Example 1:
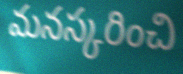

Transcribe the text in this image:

మనస్కరించి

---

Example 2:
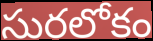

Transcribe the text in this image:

సురలోకం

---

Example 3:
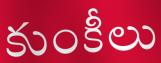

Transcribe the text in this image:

కుంకీలు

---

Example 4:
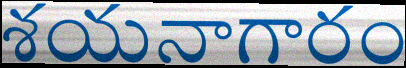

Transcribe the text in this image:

శయనాగారం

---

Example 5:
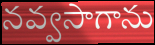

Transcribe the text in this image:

నవ్వసాగాను